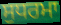
ਸੁਧਰਮਾ